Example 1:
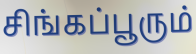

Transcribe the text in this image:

சிங்கப்பூரும்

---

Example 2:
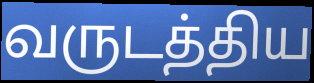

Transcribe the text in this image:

வருடத்திய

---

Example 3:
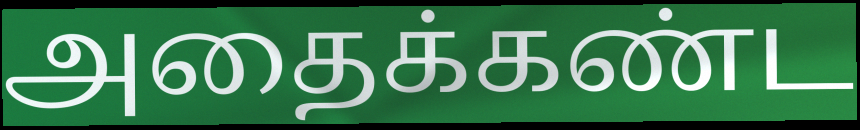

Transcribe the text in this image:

அதைக்கண்ட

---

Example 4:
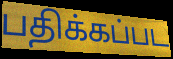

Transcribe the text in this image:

பதிக்கப்பட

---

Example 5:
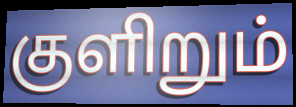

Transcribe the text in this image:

குளிறும்